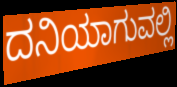
ದನಿಯಾಗುವಲ್ಲಿ